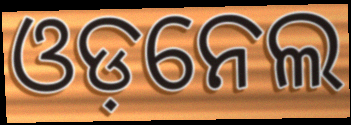
ଓଡ଼ନେଲ